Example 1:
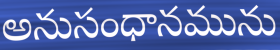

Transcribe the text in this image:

అనుసంధానమును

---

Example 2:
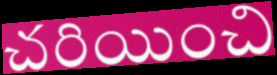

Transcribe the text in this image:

చరియించి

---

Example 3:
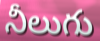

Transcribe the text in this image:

నీలుగు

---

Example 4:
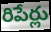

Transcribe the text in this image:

రిపేర్లు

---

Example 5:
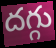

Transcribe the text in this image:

దగ్గు